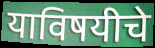
याविषयीचे